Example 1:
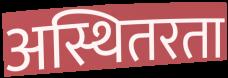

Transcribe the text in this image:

अस्थितरता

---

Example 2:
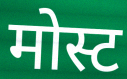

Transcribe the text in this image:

मोस्ट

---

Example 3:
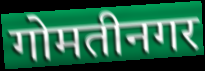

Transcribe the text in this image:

गोमतीनगर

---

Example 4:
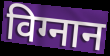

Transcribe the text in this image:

विग्नान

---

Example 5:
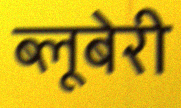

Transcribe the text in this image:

ब्लूबेरी